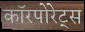
कॉरपोरेट्स